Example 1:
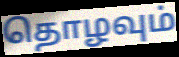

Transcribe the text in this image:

தொழவும்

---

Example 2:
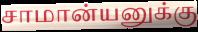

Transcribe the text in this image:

சாமான்யனுக்கு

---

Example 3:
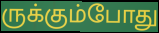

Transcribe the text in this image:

ருக்கும்போது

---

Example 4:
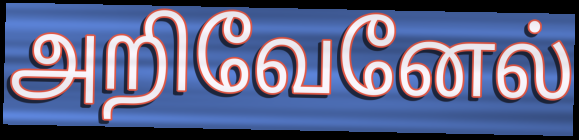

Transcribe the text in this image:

அறிவேனேல்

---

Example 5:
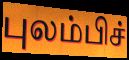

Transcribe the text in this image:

புலம்பிச்